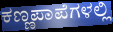
ಕಣ್ಣಪಾಪೆಗಳಲ್ಲಿ